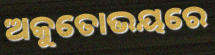
ଅକୁତୋଭୟରେ